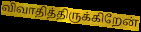
விவாதித்திருக்கிறேன்